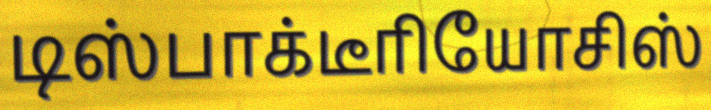
டிஸ்பாக்டீரியோசிஸ்